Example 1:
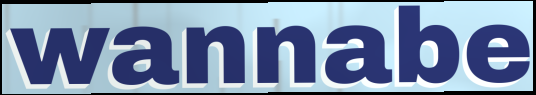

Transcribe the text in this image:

wannabe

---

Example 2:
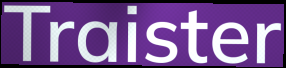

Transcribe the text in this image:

Traister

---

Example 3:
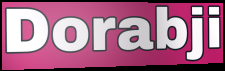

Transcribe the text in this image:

Dorabji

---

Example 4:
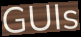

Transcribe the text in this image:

GUIs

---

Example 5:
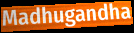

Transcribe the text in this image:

Madhugandha